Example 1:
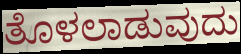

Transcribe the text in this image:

ತೊಳಲಾಡುವುದು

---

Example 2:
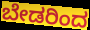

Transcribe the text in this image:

ಬೇಡರಿಂದ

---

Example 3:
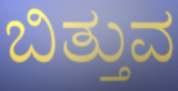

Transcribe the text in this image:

ಬಿತ್ತುವ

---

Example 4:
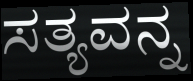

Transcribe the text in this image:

ಸತ್ಯವನ್ನ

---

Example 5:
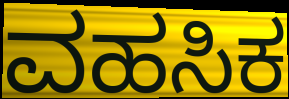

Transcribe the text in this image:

ವಹಸಿಕ